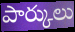
పార్కులు